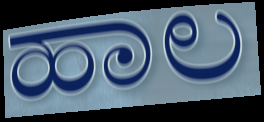
ಹಾಲ